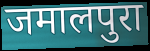
जमालपुरा